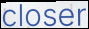
closer